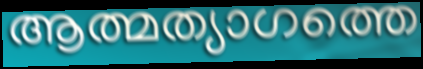
ആത്മത്യാഗത്തെ